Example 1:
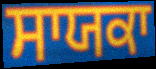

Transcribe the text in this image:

ਸਾਯਕਾ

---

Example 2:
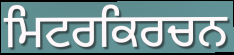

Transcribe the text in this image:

ਮਿਟਰਕਿਰਚਨ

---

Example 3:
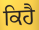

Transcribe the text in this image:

ਕਿਹੈ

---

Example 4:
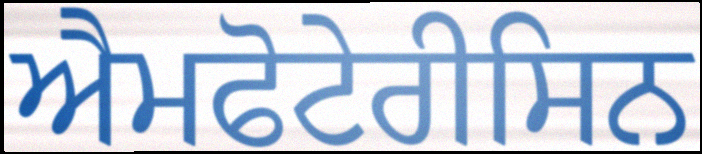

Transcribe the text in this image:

ਐਮਫੋਟੇਰੀਸਿਨ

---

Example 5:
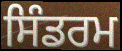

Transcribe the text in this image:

ਸਿੰਡਰਮ